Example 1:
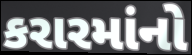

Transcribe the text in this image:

કરારમાંનો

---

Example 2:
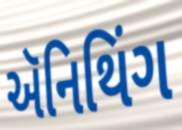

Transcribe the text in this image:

ઍનિથિંગ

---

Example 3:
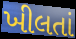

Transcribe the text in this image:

ખીલતાં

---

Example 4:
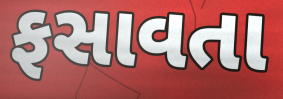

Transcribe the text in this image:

ફસાવતા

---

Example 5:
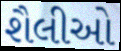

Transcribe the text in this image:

શૈલીઓ